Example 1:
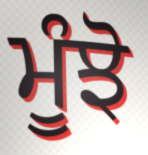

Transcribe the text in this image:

ਮੂੰਝੋ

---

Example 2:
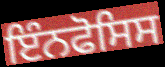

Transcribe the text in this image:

ਇੰਨਫੋਸਿਸ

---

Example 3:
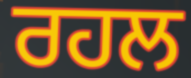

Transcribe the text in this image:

ਰਹਲ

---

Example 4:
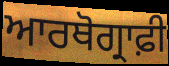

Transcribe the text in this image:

ਆਰਥੋਗ੍ਰਾਫ਼ੀ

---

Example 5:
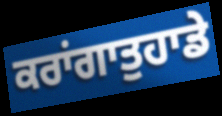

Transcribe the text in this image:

ਕਰਾਂਗਾਤੁਹਾਡੇ